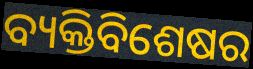
ବ୍ୟକ୍ତିବିଶେଷର